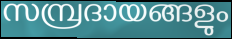
സമ്പ്രദായങ്ങളും